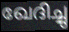
ഖേദിച്ചു